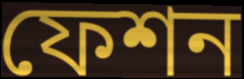
ফেশন